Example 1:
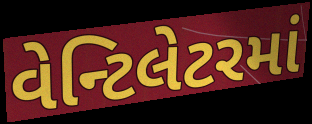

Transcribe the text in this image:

વેન્ટિલેટરમાં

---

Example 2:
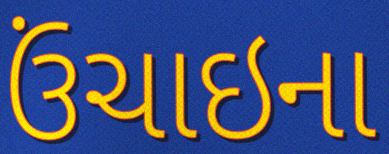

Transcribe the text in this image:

ઉંચાઇના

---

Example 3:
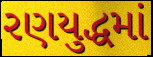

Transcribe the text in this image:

રણયુદ્ધમાં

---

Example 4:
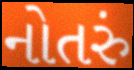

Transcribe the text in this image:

નોતરું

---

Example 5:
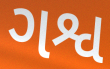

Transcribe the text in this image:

ગશ્વ